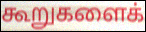
கூறுகளைக்